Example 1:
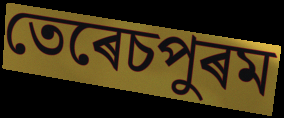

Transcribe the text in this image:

তেৰেচপুৰম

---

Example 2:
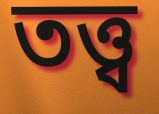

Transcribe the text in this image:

তত্ত্ব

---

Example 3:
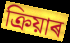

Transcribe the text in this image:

ক্ৰিয়াৰ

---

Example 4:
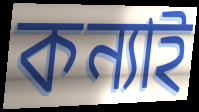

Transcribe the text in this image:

কন্যাই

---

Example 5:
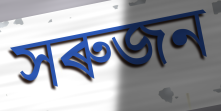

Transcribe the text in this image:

সৰুজন